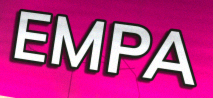
EMPA